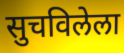
सुचविलेला